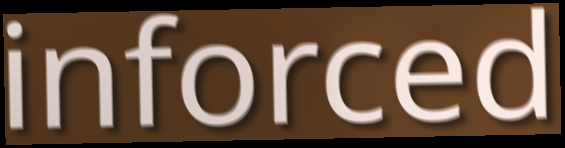
inforced